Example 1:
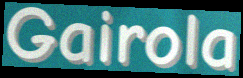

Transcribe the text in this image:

Gairola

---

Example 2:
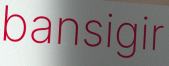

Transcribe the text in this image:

bansigir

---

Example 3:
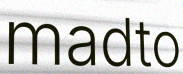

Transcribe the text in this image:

madto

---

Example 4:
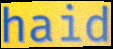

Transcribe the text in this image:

haid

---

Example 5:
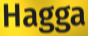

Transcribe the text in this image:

Hagga